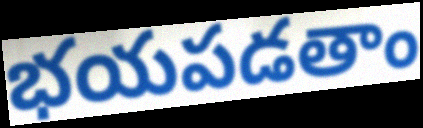
భయపడతాం